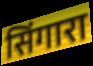
सिंगारा